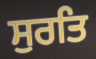
ਸੁਰਤਿ